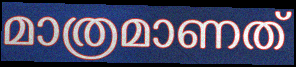
മാത്രമാണത്